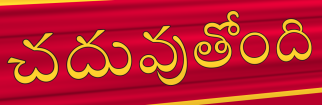
చదువుతోంది